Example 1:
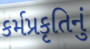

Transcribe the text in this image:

કર્મપ્રકૃતિનું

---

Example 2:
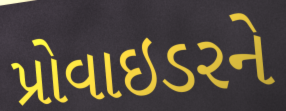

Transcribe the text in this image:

પ્રોવાઇડરને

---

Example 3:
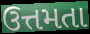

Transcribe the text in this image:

ઉત્તમતા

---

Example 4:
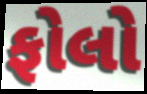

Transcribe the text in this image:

ફોલો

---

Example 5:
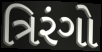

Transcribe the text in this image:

ત્રિરંગો